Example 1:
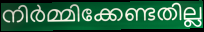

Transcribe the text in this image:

നിർമ്മിക്കേണ്ടതില്ല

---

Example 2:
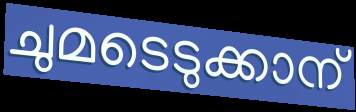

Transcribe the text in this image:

ചുമടെടുക്കാന്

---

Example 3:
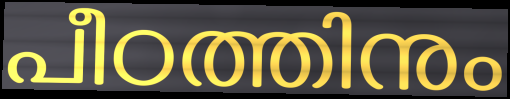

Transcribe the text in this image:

പീഠത്തിനും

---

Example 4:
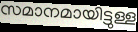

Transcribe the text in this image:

സമാനമായിട്ടുള്ള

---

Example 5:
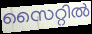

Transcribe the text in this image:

സൈറ്റിൽ